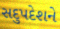
સદુપદેશને